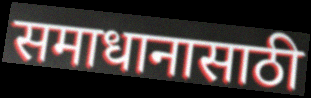
समाधानासाठी